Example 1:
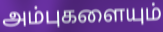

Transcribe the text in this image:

அம்புகளையும்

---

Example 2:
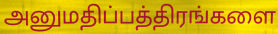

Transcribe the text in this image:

அனுமதிப்பத்திரங்களை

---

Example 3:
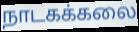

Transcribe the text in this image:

நாடகக்கலை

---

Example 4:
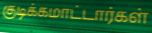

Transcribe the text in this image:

குடிக்கமாட்டார்கள்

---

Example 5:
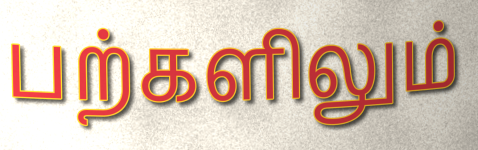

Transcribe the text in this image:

பற்களிலும்